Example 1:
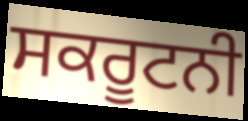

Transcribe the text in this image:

ਸਕਰੂਟਨੀ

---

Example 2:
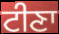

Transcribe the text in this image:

ਟੀਣਾ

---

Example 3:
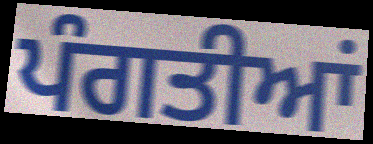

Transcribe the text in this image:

ਪੰਗਤੀਆਂ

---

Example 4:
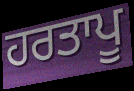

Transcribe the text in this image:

ਹਰਤਾਪੂ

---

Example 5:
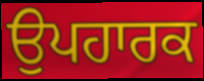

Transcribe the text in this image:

ਉਪਹਾਰਕ